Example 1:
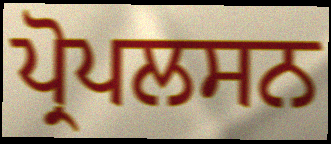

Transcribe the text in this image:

ਪ੍ਰੋਪਲਸਨ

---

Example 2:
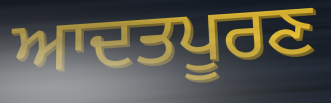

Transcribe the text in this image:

ਆਦਤਪੂਰਣ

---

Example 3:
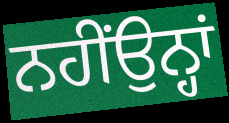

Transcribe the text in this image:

ਨਹੀਂਉਨ੍ਹਾਂ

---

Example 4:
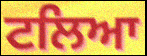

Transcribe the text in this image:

ਟਲਿਆ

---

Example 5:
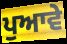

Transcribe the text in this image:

ਪੁਆਵੇ